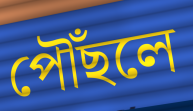
পৌঁছলে